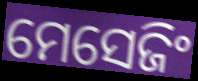
ମେସେଜିଂ